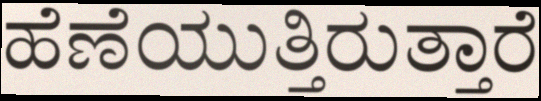
ಹೆಣೆಯುತ್ತಿರುತ್ತಾರೆ